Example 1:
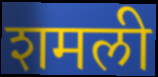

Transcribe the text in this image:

शमली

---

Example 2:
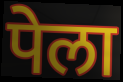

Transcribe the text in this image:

पेला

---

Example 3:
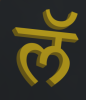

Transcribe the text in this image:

लॅ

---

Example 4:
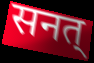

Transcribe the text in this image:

सनत्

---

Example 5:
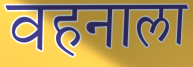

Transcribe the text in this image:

वहनाला